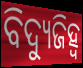
ବିଦ୍ୟୁଜିହ୍ୱ